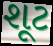
શૂટ